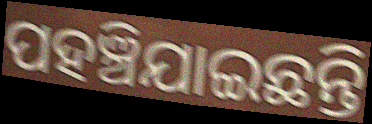
ପହଞ୍ଚିଯାଇଛନ୍ତି